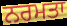
ਨਰਮਤਾ